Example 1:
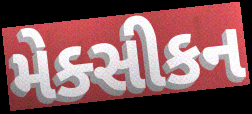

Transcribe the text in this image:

મેક્સીકન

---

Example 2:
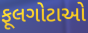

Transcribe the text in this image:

ફૂલગોટાઓ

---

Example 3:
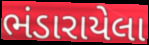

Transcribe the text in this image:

ભંડારાયેલા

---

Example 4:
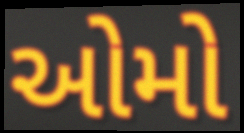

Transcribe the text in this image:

ઓમો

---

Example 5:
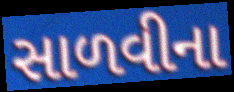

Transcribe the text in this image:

સાળવીના